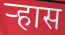
ऱ्हास